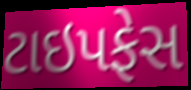
ટાઇપફેસ